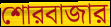
শোরবাজার